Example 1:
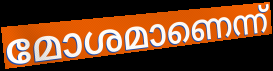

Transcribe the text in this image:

മോശമാണെന്ന്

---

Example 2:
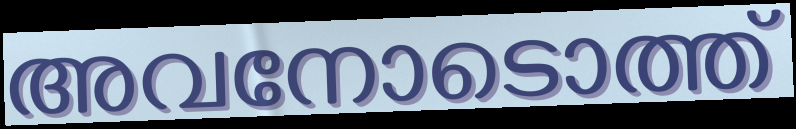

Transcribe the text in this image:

അവനോടൊത്ത്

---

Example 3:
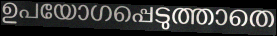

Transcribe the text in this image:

ഉപയോഗപ്പെടുത്താതെ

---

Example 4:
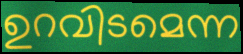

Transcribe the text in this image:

ഉറവിടമെന്ന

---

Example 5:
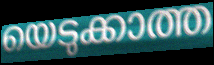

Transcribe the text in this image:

യെടുക്കാത്ത